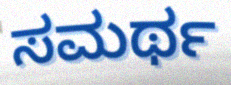
ಸಮರ್ಥ